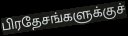
பிரதேசங்களுக்குச்